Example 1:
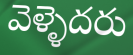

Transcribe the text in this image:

వెళ్ళెదరు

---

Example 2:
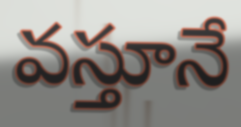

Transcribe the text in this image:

వస్తూనే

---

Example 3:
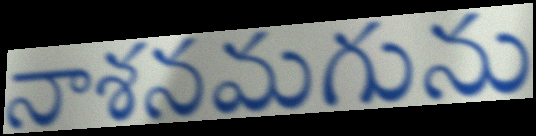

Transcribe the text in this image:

నాశనమగును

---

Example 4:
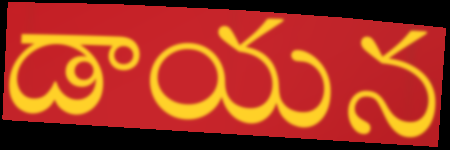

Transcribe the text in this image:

డాయన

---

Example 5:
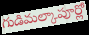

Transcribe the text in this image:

గుడిమల్కాపూర్లో